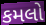
કમલો